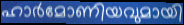
ഹാർമോണിയവുമായി